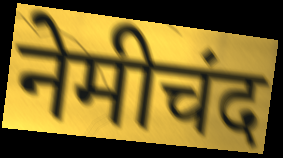
नेमीचंद